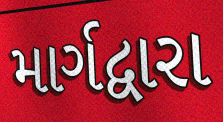
માર્ગદ્વારા